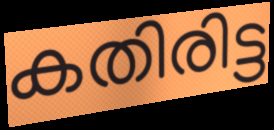
കതിരിട്ട